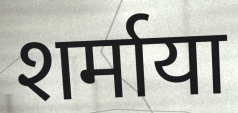
शर्माया